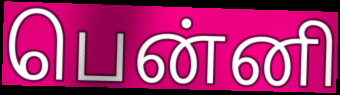
பென்னி